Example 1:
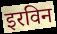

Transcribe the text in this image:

इरविन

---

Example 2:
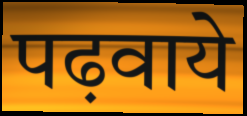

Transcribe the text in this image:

पढ़वाये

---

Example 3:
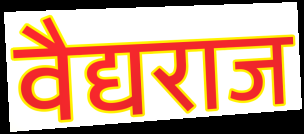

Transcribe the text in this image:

वैद्यराज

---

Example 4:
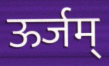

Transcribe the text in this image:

ऊर्जम्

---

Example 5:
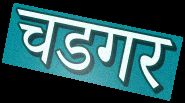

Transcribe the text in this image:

चडगर